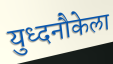
युध्दनौकेला